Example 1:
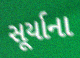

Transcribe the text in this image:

સૂર્યાના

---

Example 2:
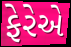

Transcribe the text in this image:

ફેરેએ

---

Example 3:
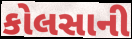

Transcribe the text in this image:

કોલસાની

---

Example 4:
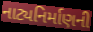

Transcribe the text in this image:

નાટ્યનિર્માણની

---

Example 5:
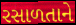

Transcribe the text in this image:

રસાળતાને